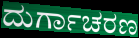
ದುರ್ಗಾಚರಣ